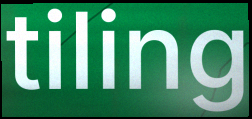
tiling